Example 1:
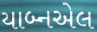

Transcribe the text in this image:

યાબ્નએલ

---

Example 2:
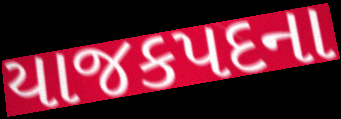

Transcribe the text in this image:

યાજકપદના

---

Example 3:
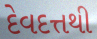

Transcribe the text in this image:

દેવદત્તથી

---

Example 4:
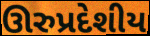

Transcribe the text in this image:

ઊરુપ્રદેશીય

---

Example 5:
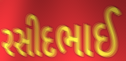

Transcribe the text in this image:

રસીદભાઈ